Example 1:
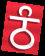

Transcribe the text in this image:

ਠੰ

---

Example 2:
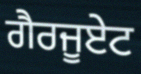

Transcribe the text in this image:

ਗੈਰਜੂਏਟ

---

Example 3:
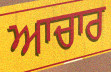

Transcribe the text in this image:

ਆਚਾਰ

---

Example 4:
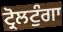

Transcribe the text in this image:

ਟ੍ਰੋਲਟੁੰਗਾ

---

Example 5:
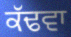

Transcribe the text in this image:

ਕੱਢਵਾ